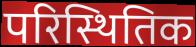
परिस्थितिक